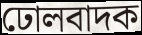
ঢোলবাদক